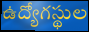
ఉద్యోగస్థుల